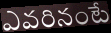
ఎవరినంటే